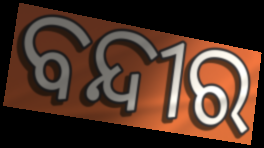
ବନ୍ଦୀର